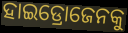
ହାଇଡ୍ରୋଜେନକୁ